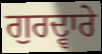
ਗੁਰਦ੍ਵਾਰੇ